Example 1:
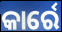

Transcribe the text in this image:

କାର୍ରେ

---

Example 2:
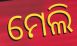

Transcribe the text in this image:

ମେଲି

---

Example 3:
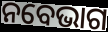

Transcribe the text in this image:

ନବେଭାଗ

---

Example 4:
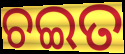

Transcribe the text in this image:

ଚଇତ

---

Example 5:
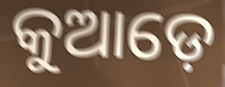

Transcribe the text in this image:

କୁଆଡ଼େ